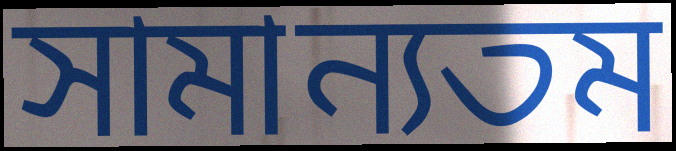
সামান্যতম